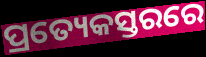
ପ୍ରତ୍ୟେକସ୍ତରରେ